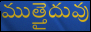
ముత్తైదువు